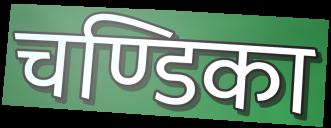
चण्डिका